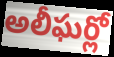
అలీఘర్లో